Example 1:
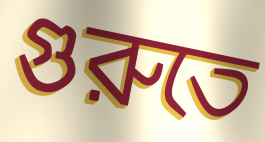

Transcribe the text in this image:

গুরুতে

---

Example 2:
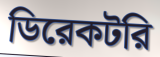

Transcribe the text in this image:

ডিরেকটরি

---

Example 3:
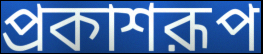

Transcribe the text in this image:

প্রকাশরূপ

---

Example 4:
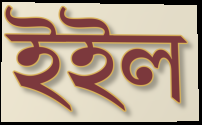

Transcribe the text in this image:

ইইল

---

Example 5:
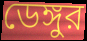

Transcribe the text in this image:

ডেঙ্গুর